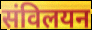
संविलयन